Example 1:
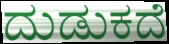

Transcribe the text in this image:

ದುಡುಕದೆ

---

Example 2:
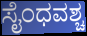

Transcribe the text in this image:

ಸೈಂಧವಶ್ಚ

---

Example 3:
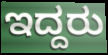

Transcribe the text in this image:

ಇದ್ದರು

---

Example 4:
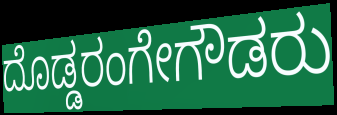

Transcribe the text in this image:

ದೊಡ್ಡರಂಗೇಗೌಡರು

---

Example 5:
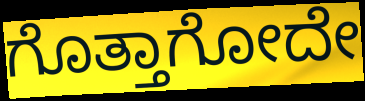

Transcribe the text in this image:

ಗೊತ್ತಾಗೋದೇ